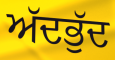
ਅੱਦਭੁੱਦ